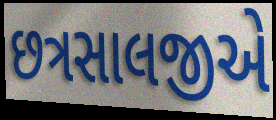
છત્રસાલજીએ